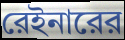
রেইনারের